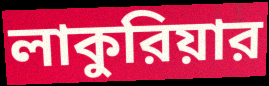
লাকুরিয়ার